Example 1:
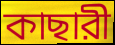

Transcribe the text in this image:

কাছারী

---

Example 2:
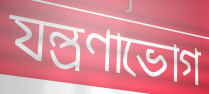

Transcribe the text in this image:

যন্ত্রণাভোগ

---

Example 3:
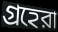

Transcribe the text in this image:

গ্রহেরা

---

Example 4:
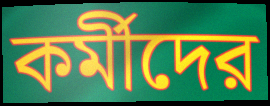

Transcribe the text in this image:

কর্মীদের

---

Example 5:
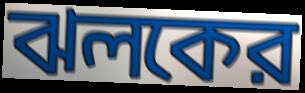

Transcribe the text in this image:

ঝলকের